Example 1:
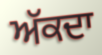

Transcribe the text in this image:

ਅੱਕਦਾ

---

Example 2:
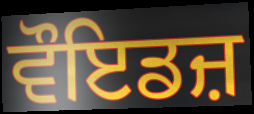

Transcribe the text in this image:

ਵੌਇਡਜ਼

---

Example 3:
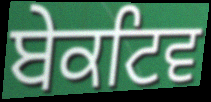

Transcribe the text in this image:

ਬੇਕਟਿਵ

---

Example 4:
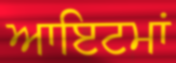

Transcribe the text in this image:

ਆਇਟਮਾਂ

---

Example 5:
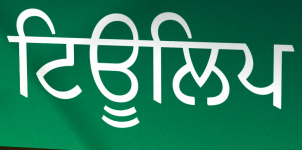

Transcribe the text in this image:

ਟਿਊਲਿਪ